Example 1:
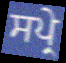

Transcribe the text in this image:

ਸਪ੍ਰੇ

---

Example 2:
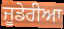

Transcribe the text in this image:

ਜੂਡੇਰੀਆ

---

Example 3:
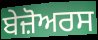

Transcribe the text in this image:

ਬੇਜ਼ੋਅਰਸ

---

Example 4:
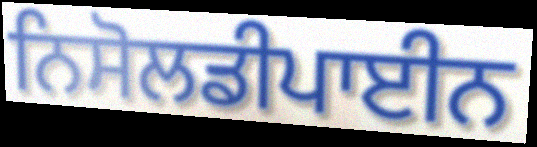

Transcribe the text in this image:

ਨਿਸੋਲਡੀਪਾਈਨ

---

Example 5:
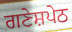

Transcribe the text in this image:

ਗਣੇਸ਼ਪੇਠ